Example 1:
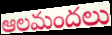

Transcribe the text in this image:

ఆలమందలు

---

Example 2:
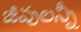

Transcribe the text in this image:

జీవులన్నీ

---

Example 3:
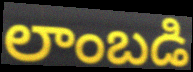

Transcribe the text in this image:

లాంబడి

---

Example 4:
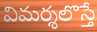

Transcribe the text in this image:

విమర్శలొస్తే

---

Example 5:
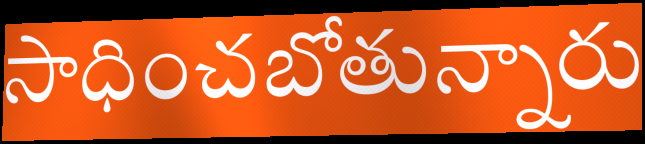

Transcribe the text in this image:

సాధించబోతున్నారు